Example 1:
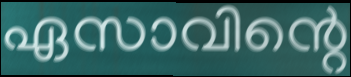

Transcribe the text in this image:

ഏസാവിന്റെ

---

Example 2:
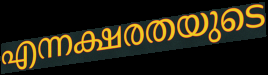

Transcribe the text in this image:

എന്നക്ഷരതയുടെ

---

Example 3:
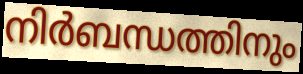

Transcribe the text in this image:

നിർബന്ധത്തിനും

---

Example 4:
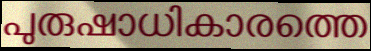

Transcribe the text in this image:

പുരുഷാധികാരത്തെ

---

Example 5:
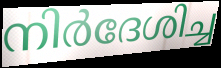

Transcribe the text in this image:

നിർദേശിച്ച